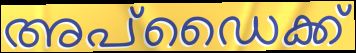
അപ്ഡൈക്ക്